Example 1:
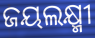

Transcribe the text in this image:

ଜୟଲକ୍ଷ୍ମୀ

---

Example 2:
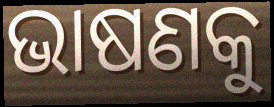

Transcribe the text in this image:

ଭାଷଣକୁ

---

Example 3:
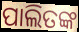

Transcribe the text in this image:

ପାଲିତଙ୍କ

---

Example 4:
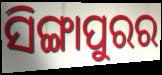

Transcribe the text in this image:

ସିଙ୍ଗାପୁରର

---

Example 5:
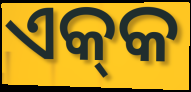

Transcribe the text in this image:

ଏକ୍‍କ